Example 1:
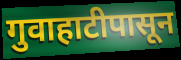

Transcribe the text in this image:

गुवाहाटीपासून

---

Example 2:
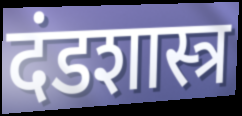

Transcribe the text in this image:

दंडशास्त्र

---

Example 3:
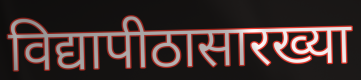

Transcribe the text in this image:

विद्यापीठासारख्या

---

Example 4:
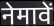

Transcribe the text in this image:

नेमावें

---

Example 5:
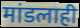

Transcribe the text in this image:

मांडलाही